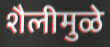
शैलीमुळे